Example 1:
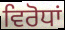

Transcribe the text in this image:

ਵਿਰੋਧਾਂ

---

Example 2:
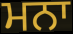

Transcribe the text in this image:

ਮਨਾ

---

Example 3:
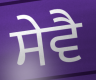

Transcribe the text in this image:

ਸੇਵੈ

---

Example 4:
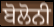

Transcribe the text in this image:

ਬੋਲੋਨੀ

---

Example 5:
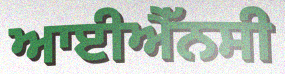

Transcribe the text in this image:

ਆਈਐੱਨਸੀ